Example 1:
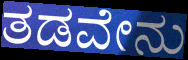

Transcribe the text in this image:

ತಡವೇನು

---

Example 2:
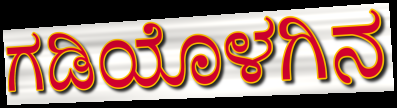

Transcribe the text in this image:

ಗಡಿಯೊಳಗಿನ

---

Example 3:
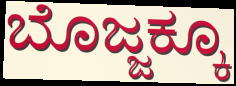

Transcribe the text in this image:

ಬೊಜ್ಜಕ್ಕೂ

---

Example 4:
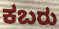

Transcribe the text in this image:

ಕಬರು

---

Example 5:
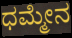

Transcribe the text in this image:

ಧಮ್ಮೇನ